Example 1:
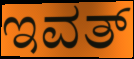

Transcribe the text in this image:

ಇವತ್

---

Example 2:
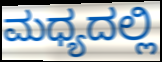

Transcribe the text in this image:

ಮಧ್ಯದಲ್ಲಿ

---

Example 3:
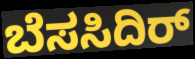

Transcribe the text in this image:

ಬೆಸಸಿದಿರ್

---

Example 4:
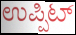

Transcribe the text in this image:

ಉಪ್ಪಿಟ್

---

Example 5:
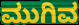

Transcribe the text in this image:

ಮುಗಿವ